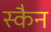
स्‍कैन